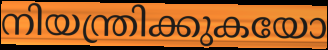
നിയന്ത്രിക്കുകയോ